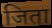
जिता